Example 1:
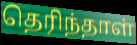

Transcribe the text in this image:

தெரிந்தாள்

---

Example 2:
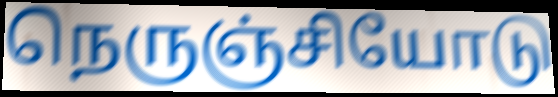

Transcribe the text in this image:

நெருஞ்சியோடு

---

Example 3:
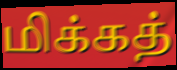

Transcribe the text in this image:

மிக்கத்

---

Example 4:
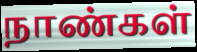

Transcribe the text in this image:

நாண்கள்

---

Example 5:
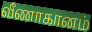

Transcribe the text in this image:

வீணாகானம்